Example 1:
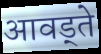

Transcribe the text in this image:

आवड्ते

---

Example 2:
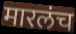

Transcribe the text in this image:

मारलंच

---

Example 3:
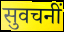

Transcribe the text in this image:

सुवचनीं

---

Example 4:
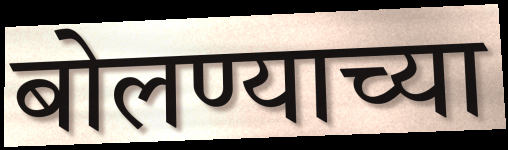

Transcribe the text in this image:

बोलण्याच्या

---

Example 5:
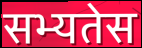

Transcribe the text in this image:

सभ्यतेस